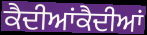
ਕੈਦੀਆਂਕੈਦੀਆਂ